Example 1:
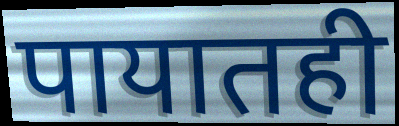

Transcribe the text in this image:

पायातही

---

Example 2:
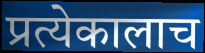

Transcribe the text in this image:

प्रत्येकालाच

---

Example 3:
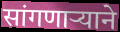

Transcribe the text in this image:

सांगणार्‍याने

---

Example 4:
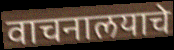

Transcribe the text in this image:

वाचनालयाचे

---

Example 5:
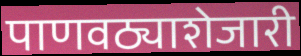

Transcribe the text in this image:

पाणवठ्याशेजारी